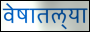
वेषातल्या